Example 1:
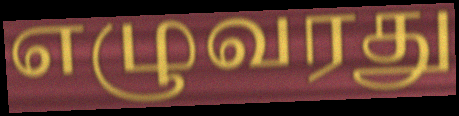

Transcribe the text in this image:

எழுவரது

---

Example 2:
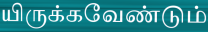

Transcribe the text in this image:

யிருக்கவேண்டும்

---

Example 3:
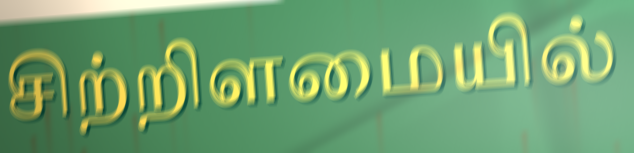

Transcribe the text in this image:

சிற்றிளமையில்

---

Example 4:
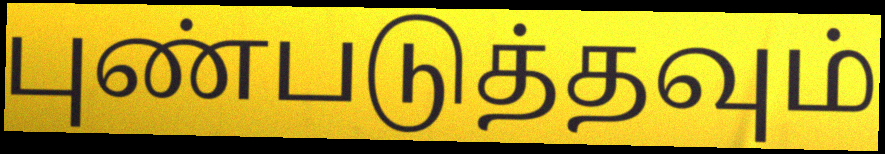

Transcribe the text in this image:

புண்படுத்தவும்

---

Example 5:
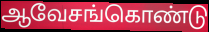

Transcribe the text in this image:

ஆவேசங்கொண்டு